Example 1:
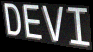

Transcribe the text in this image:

DEVI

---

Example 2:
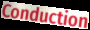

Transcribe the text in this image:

Conduction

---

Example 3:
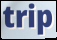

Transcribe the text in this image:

trip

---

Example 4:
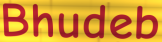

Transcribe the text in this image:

Bhudeb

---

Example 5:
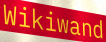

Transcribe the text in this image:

Wikiwand